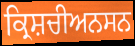
ਕ੍ਰਿਸ਼ਚੀਅਨਸਨ